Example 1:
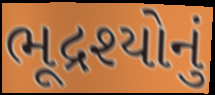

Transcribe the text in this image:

ભૂદ્રશ્યોનું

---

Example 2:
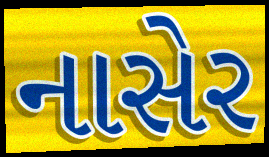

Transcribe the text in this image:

નાસેર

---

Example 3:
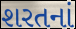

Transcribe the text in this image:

શરતનાં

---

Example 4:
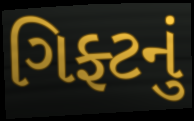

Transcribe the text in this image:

ગિફ્ટનું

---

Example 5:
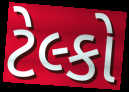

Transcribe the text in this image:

ટેલ્કો